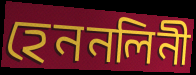
হেননলিনী